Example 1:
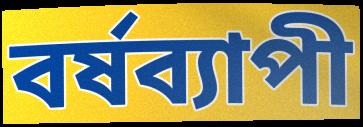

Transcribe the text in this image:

বর্ষব্যাপী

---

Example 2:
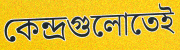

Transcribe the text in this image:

কেন্দ্রগুলোতেই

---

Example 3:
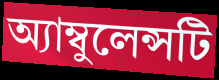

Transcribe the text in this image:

অ্যাম্বুলেন্সটি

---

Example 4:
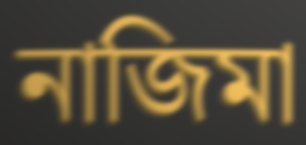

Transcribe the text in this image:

নাজিমা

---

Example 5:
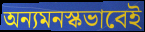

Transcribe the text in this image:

অন্যমনস্কভাবেই